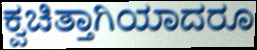
ಕ್ವಚಿತ್ತಾಗಿಯಾದರೂ